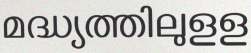
മദ്ധ്യത്തിലുളള